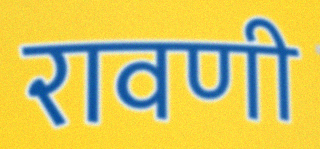
रावणी